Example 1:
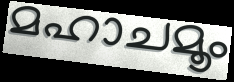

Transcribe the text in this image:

മഹാചമൂം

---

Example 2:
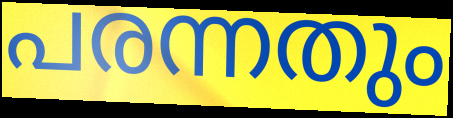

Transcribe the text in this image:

പരന്നതും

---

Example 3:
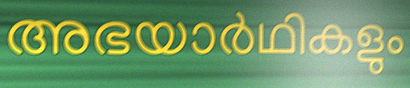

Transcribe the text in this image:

അഭയാർഥികളും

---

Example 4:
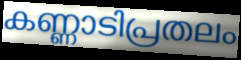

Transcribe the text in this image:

കണ്ണാടിപ്രതലം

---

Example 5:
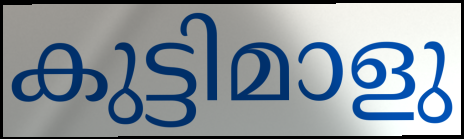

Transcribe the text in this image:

കുട്ടിമാളു